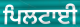
ਪਿਲਟਾਈ